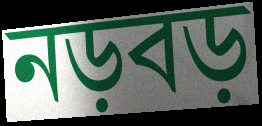
নড়বড়